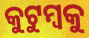
କୁଟୁମ୍ବକୁ